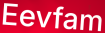
Eevfam